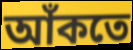
আঁকতে